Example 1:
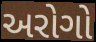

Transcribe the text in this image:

અરોગો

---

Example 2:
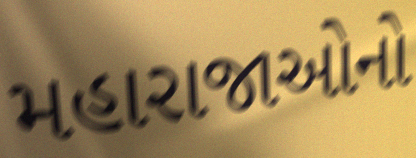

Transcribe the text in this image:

મહારાજાઓનો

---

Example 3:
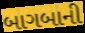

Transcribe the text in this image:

બાગબાની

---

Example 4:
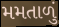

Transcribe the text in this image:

મમતાળું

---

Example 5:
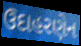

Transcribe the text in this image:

ઉદાહરણેન